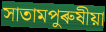
সাতামপুৰুষীয়া